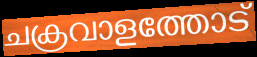
ചക്രവാളത്തോട്